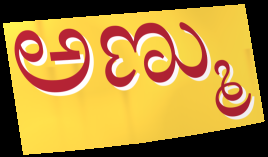
ಅಣ್ಮು